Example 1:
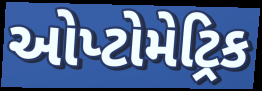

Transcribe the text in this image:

ઓપ્ટોમેટ્રિક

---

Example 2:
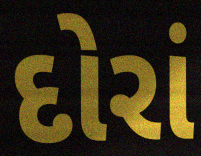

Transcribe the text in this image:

દોરાં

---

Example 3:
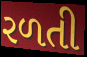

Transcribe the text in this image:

રળતી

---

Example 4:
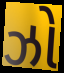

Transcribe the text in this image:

ઝો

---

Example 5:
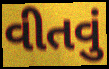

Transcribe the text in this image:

વીતવું